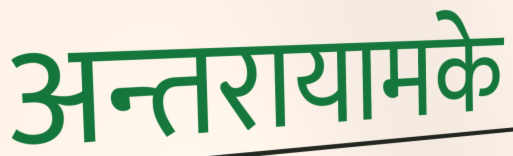
अन्तरायामके